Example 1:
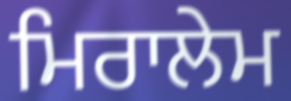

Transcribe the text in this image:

ਮਿਰਾਲੇਮ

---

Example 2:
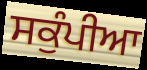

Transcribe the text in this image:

ਸਕੁੰਪੀਆ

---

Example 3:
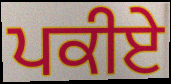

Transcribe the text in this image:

ਪਕੀਏ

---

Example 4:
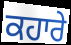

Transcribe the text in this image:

ਕਹਾਰੇ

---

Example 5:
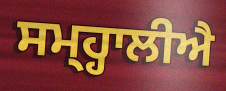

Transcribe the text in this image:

ਸਮ੍ਹ੍ਹਾਲੀਐ